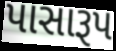
પાસારૂપ